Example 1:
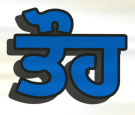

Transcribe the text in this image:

ਤੌਹ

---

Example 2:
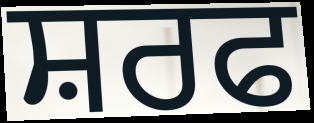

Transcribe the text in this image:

ਸ਼ਰਫ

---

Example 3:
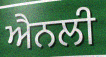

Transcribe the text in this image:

ਐਨਲੀ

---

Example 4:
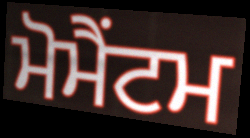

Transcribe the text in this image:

ਮੋਮੈਂਟਮ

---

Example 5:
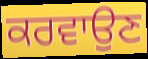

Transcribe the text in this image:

ਕਰਵਾਉਣ